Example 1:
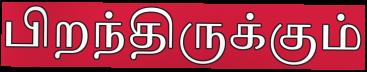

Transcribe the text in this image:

பிறந்திருக்கும்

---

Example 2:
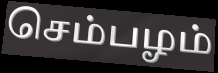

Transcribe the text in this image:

செம்பழம்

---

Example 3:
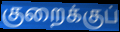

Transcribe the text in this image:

குறைக்குப்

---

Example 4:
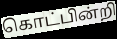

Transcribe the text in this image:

கொட்பின்றி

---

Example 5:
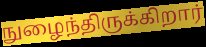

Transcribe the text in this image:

நுழைந்திருக்கிறார்